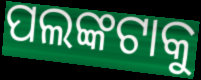
ପଲଙ୍କଟାକୁ